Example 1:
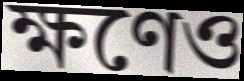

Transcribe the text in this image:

ক্ষণেও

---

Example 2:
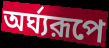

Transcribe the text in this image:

অর্ঘ্যরূপে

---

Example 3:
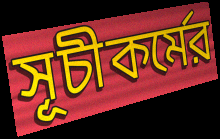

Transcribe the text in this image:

সূচীকর্মের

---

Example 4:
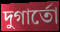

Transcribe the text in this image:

দুগার্তো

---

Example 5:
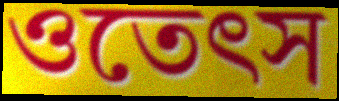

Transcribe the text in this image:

ওতেৎস